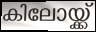
കിലോയ്ക്ക്